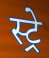
स्ट्रे